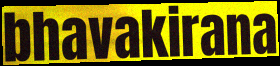
bhavakirana